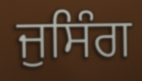
ਜੁਸਿੰਗ